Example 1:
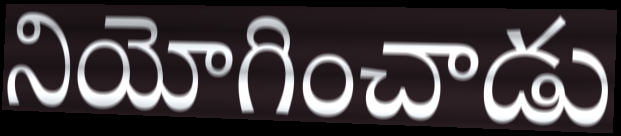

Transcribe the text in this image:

నియోగించాడు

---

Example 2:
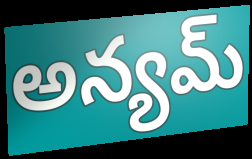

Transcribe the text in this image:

అన్యమ్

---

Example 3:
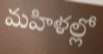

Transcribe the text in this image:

మహిళల్లో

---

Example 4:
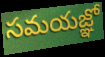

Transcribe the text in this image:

సమయజ్ఞో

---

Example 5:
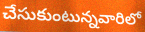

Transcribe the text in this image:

చేసుకుంటున్నవారిలో